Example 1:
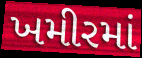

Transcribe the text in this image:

ખમીરમાં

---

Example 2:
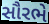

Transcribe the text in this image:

સૌરભે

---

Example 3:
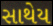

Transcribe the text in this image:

સાથેય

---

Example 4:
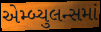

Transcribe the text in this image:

એમ્બ્યુલન્સમાં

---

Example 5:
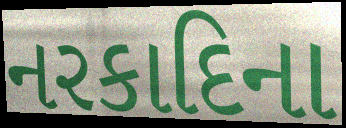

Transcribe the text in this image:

નરકાદિના